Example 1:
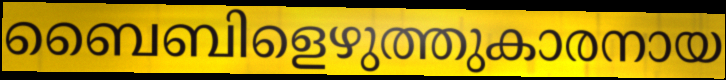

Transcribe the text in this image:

ബൈബിളെഴുത്തുകാരനായ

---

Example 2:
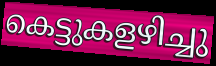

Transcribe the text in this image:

കെട്ടുകളഴിച്ചു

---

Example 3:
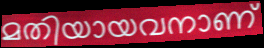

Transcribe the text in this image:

മതിയായവനാണ്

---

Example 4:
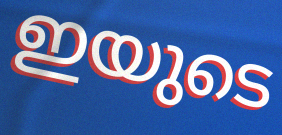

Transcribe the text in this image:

ഇയുടെ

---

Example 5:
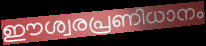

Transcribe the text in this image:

ഈശ്വരപ്രണിധാനം